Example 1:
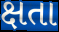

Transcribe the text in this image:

ક્ષતા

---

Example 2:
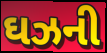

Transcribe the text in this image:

ઘઝની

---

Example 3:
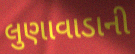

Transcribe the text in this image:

લુણાવાડાની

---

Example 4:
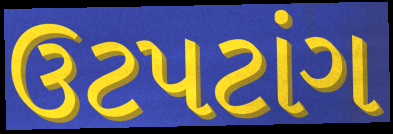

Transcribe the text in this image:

ઉટપટાંગ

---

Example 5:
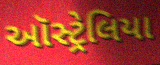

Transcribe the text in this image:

ઑસ્ટ્રેલિયા